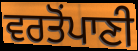
ਵਰਤੋਂਪਾਣੀ